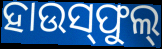
ହାଉସ୍‌ଫୁଲ୍